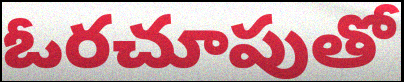
ఓరచూపుతో